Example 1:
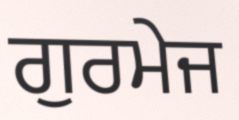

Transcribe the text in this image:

ਗੁਰਮੇਜ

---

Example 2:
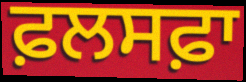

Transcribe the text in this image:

ਫ਼ਲਸਫ਼ਾ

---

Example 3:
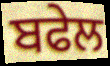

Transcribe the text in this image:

ਬਫੇਲ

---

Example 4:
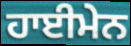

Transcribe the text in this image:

ਹਾਈਮੇਨ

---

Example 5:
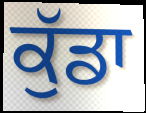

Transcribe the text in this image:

ਕੁੱਡਾ